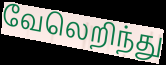
வேலெறிந்து